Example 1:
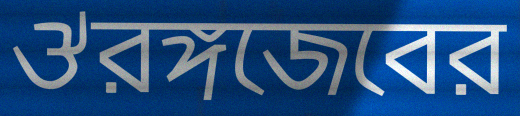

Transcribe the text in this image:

ঔরঙ্গজেবের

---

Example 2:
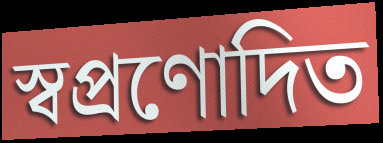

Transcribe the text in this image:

স্বপ্রণোদিত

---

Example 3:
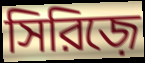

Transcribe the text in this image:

সিরিজ়ে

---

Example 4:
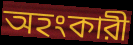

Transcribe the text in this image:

অহংকারী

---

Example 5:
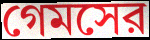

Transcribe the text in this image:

গেমসের